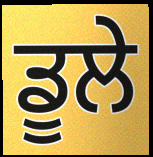
ਡੂਲੇ